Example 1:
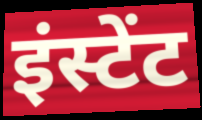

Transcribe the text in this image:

इंस्टेंट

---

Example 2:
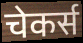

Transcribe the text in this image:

चेकर्स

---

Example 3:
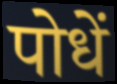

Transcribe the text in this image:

पोधें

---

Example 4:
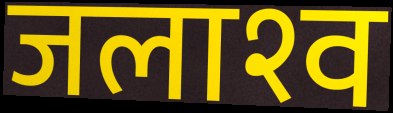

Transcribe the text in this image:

जलाश्व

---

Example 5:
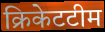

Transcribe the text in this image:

क्रिकेटटीम